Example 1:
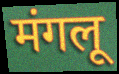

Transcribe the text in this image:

मंगलू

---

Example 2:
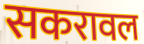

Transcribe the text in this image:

सकरावल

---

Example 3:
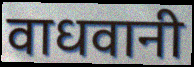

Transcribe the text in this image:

वाधवानी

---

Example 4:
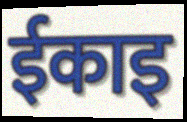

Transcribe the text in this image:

ईकाइ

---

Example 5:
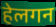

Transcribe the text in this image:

हेलगन